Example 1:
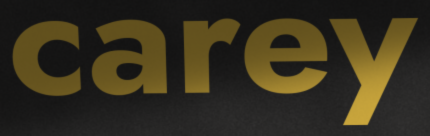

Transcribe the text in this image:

carey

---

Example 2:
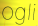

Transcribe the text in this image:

ogli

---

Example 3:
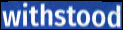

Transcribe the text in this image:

withstood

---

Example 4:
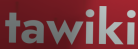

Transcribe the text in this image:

tawiki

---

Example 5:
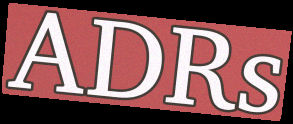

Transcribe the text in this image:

ADRs